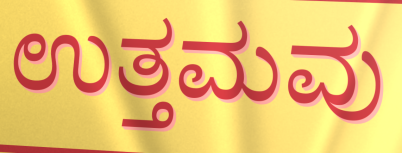
ಉತ್ತಮವು